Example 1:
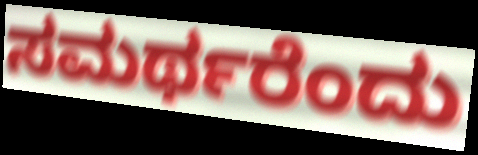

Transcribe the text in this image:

ಸಮರ್ಥರೆಂದು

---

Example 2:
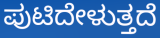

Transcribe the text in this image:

ಪುಟಿದೇಳುತ್ತದೆ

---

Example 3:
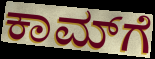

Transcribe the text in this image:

ಕಾಮ್‌ಗೆ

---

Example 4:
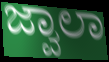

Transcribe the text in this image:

ಜ್ವಾಲಾ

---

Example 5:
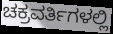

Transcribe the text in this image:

ಚಕ್ರವರ್ತಿಗಳಲ್ಲಿ